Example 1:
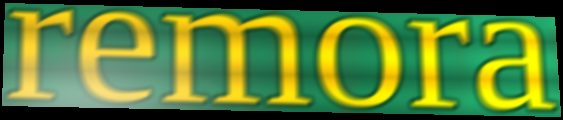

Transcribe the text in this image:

remora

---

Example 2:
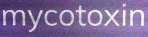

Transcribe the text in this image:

mycotoxin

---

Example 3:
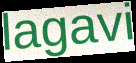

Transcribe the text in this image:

lagavi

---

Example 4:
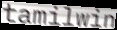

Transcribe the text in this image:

tamilwin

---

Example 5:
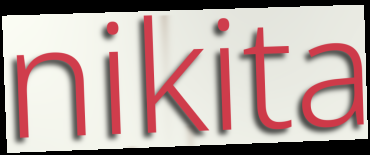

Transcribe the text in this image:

nikita